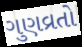
ગુણવ્રતો